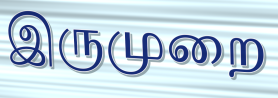
இருமுறை